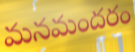
మనమందరం